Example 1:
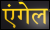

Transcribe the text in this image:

एंगेल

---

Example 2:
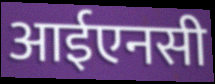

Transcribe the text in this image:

आईएनसी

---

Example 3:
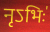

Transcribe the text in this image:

नृऽभिः॑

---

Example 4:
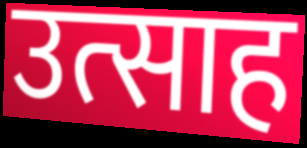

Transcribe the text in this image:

उत्‍साह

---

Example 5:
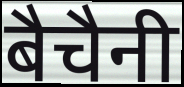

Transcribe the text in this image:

बैचैनी